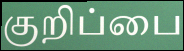
குறிப்பை